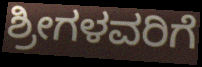
ಶ್ರೀಗಳವರಿಗೆ